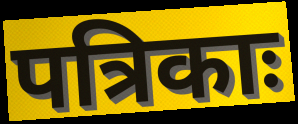
पत्रिकाः